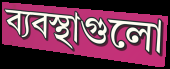
ব্যবস্থাগুলো